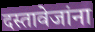
दस्तावेजांना